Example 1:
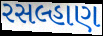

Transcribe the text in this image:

રસલ્હાણ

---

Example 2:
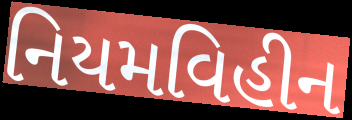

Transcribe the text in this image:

નિયમવિહીન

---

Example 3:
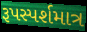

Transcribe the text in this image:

રૂપસ્પર્શમાત્ર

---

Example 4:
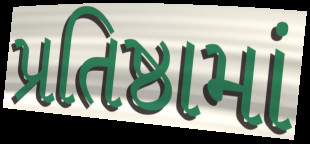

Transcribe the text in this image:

પ્રતિષ્ઠામાં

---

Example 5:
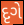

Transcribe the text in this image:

દૃગે